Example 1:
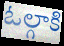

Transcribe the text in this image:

ఓల్గాకి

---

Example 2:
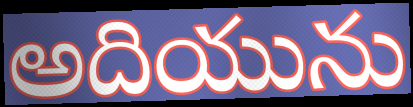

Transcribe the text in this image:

అదియును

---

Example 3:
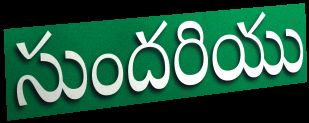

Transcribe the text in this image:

సుందరియు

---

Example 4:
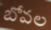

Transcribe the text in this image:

బోవల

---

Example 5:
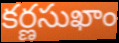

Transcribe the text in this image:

కర్ణసుఖాం